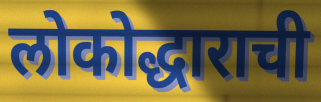
लोकोद्धाराची